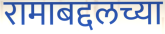
रामाबद्दलच्या